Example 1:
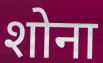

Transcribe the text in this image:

शोना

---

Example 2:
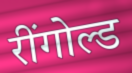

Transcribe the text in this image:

रींगोल्ड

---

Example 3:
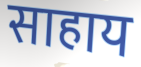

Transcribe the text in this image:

साहाय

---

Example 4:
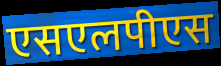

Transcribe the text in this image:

एसएलपीएस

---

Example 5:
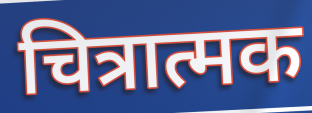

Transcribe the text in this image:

चित्रात्मक